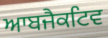
ਆਬਜੈਕਟਿਵ